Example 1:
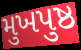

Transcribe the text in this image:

મુખપુષ્ઠ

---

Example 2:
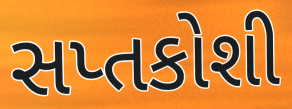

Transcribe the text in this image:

સપ્તકોશી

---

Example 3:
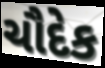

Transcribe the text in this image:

ચૌદેક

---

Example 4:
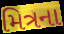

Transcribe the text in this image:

મિત્રના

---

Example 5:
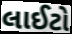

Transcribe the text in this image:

લાઈટો